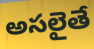
అసలైతే